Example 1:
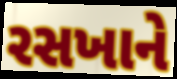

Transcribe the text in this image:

રસખાને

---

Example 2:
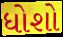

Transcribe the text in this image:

ધોશો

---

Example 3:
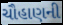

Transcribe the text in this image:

ચૌહાણની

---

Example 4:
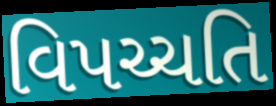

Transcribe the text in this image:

વિપચ્ચતિ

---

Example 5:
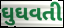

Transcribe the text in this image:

ઘુઘવતી